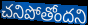
చనిపోతోందని